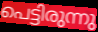
പെട്ടിരുന്നു